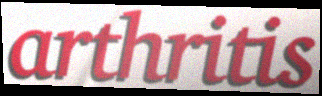
arthritis